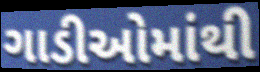
ગાડીઓમાંથી